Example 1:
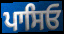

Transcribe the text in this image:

ਪਾਸਿਓ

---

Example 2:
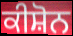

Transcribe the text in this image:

ਕੀਸ਼ੋਨ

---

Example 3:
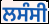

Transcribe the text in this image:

ਲਸੰਸੀ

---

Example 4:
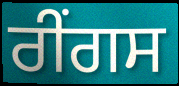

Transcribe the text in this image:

ਰੀਂਗਸ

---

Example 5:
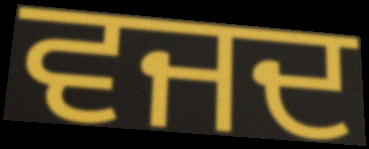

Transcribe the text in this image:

ਵਜਦ